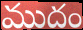
ముదం